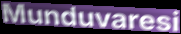
Munduvaresi